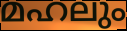
മഹലും